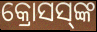
କ୍ରୋସସ୍‌ଙ୍କ